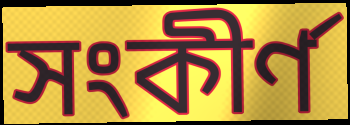
সংকীর্ণ